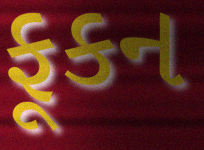
ફૂકન